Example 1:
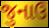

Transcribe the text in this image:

જુનાઉ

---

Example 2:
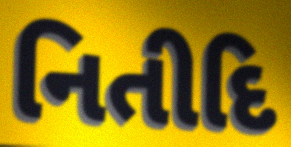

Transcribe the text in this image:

નિતીદિ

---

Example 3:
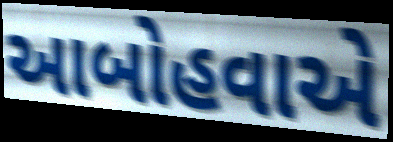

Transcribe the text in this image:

આબોહવાએ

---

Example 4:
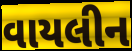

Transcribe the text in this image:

વાયલીન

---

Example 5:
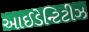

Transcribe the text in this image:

આઈડેન્ટિટીઝ